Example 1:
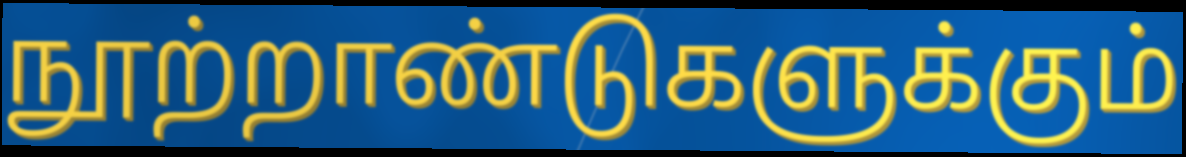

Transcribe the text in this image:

நூற்றாண்டுகளுக்கும்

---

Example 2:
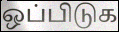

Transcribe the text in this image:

ஒப்பிடுக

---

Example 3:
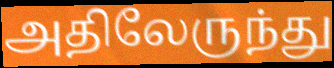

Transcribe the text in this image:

அதிலேருந்து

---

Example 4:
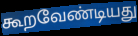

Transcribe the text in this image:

கூறவேண்டியது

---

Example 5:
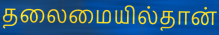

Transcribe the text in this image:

தலைமையில்தான்